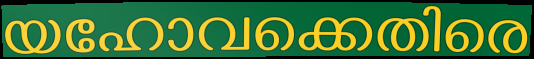
യഹോവക്കെതിരെ